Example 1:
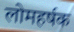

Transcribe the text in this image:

लोमहर्षक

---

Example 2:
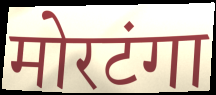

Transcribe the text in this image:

मोरटंगा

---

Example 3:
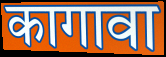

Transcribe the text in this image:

कागावा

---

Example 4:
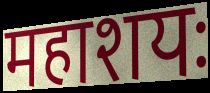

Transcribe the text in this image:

महाशयः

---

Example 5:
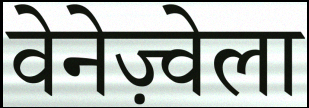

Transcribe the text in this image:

वेनेज़्वेला